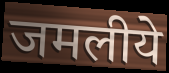
जमलीये